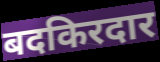
बदकिरदार